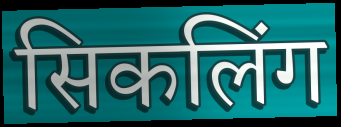
सिकलिंग